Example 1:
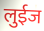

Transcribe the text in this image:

लुईज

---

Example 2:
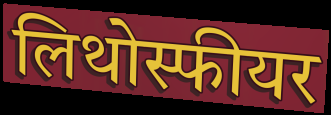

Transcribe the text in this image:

लिथोस्फीयर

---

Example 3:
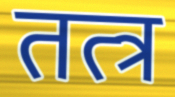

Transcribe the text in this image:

तत्त्र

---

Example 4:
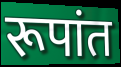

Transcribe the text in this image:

रूपांत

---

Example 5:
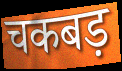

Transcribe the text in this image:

चकबड़